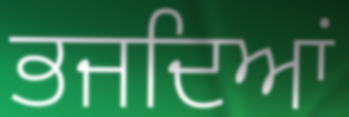
ਭਜਦਿਆਂ